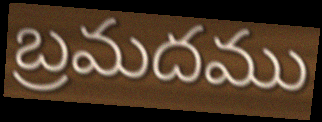
బ్రమదము